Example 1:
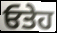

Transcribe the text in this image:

ਓਤੇਹ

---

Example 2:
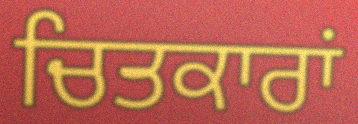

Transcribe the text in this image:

ਚਿਤਕਾਰਾਂ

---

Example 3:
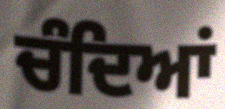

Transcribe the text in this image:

ਚੰਦਿਆਂ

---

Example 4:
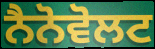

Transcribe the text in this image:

ਨੈਨੋਵੋਲਟ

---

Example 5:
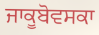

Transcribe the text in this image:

ਜਾਕੂਬੋਵਸਕਾ